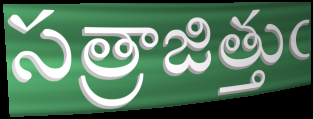
సత్రాజిత్తుఁ